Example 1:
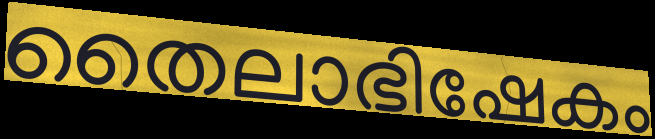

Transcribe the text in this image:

തൈലാഭിഷേകം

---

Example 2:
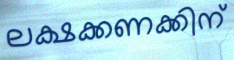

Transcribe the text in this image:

ലക്ഷക്കണക്കിന്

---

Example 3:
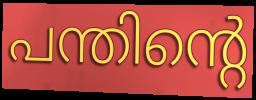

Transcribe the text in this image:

പന്തിന്റെ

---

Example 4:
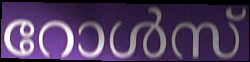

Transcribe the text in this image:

റോൾസ്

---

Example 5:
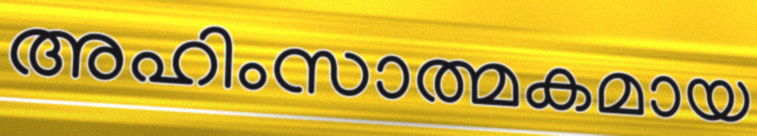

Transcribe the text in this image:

അഹിംസാത്മകമായ